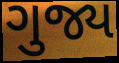
ગુજ્ય